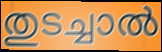
തുടച്ചാൽ